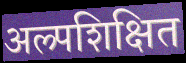
अल्पशिक्षित